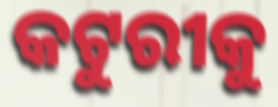
କଟୁରୀକୁ